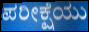
ಪರೀಕ್ಷೆಯು